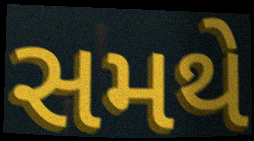
સમથે